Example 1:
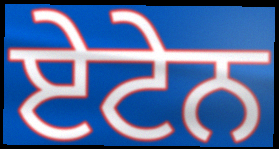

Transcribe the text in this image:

ਏਟੇਨ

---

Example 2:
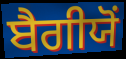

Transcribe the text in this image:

ਬੈਗੀਯੋਂ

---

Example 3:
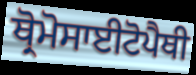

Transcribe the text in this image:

ਥ੍ਰੋਮੋਸਾਈਟੋਪੈਥੀ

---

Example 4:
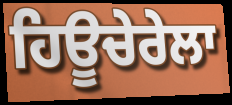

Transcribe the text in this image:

ਹਿਊਚੇਰੇਲਾ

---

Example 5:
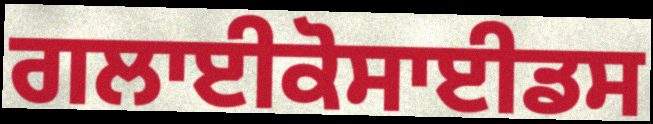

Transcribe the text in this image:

ਗਲਾਈਕੋਸਾਈਡਸ